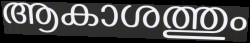
ആകാശത്തും